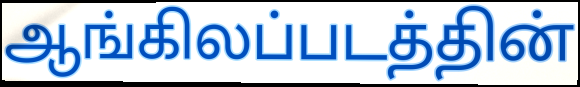
ஆங்கிலப்படத்தின்